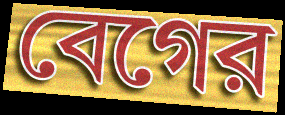
বেগের